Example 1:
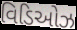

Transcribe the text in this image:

વિડિઓઝ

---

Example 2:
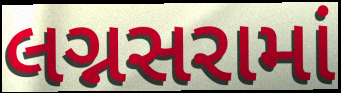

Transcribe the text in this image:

લગ્નસરામાં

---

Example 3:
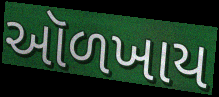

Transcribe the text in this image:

ઑળખાય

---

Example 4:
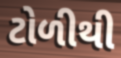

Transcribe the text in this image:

ટોળીથી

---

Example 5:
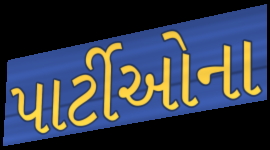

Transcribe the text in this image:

પાર્ટીઓના